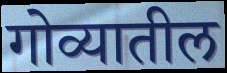
गोव्यातील